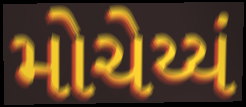
મોચેય્યં